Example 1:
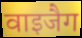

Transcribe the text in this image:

वाइजैग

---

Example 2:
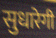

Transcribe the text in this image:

सुधारेगी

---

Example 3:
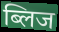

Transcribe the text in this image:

ब्लिज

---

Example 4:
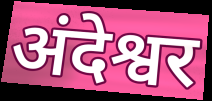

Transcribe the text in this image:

अंदेश्वर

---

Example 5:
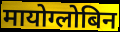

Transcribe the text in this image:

मायोग्लोबिन